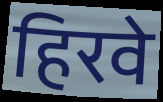
हिरवे